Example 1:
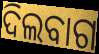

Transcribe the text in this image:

ଦିଲବାଗ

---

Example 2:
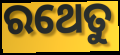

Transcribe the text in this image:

ରଥେତୁ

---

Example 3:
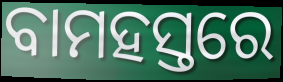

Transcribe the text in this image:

ବାମହସ୍ତରେ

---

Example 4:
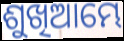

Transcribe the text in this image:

ଶୁଖିଆମ୍ଭେ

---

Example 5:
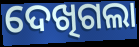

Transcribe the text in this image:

ଦେଖିଗଲା